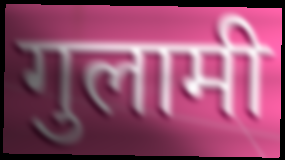
गुलामी